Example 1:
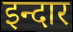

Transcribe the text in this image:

इन्दार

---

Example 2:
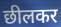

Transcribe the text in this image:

छीलकर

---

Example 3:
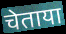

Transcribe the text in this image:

चेताया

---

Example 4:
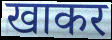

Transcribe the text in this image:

खाकर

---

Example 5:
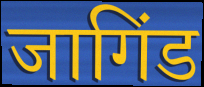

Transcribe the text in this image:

जागिंड